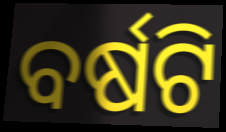
ବର୍ଷଟି